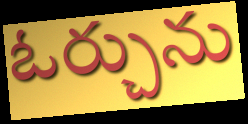
ఓర్చును